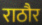
राठौर